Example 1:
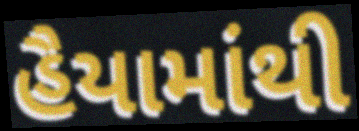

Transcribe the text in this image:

હૈયામાંથી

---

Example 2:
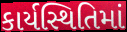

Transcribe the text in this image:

કાર્યસ્થિતિમાં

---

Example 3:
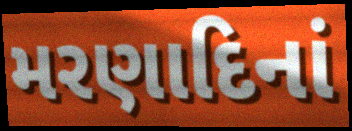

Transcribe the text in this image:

મરણાદિનાં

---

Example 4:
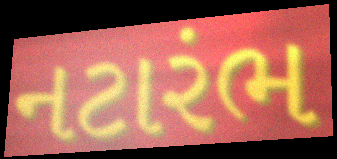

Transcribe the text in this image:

નટારંભ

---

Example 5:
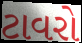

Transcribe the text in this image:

ટાવરો